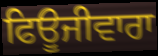
ਫਿਊਜੀਵਾਰਾ